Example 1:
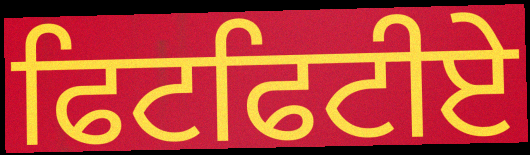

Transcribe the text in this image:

ਫਿਟਫਿਟੀਏ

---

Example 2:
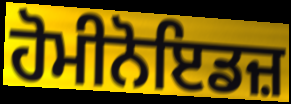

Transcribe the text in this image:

ਹੋਮੀਨੋਇਡਜ਼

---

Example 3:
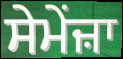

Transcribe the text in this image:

ਸੇਮੇਂਜ਼ਾ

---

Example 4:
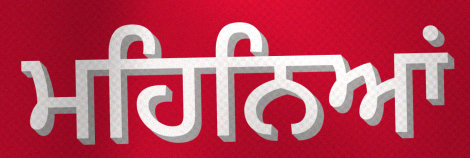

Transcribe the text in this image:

ਮਹਿਨਿਆਂ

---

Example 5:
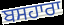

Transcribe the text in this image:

ਬਸਹਾਰਾ